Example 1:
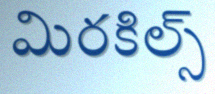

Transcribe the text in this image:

మిరకిల్స్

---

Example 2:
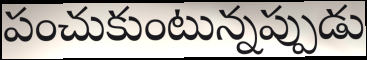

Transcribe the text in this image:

పంచుకుంటున్నప్పుడు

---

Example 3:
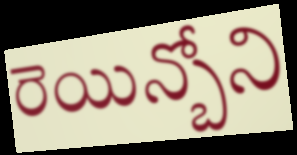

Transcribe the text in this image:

రెయిన్బోని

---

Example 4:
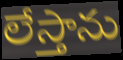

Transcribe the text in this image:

లేస్తాను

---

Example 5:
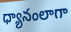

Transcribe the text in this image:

ధ్యానంలాగా